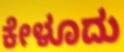
ಕೇಳೂದು